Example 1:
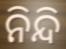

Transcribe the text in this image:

ନିନ୍ଦି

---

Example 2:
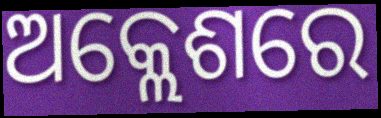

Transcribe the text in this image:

ଅକ୍ଲେଶରେ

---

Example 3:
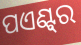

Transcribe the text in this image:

ପଏଣ୍ଟ୍‌ର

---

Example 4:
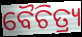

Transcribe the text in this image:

ବୈଚିତ୍ର୍ୟ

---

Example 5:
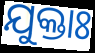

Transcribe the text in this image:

ଯୁକ୍ତାଃ